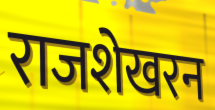
राजशेखरन